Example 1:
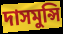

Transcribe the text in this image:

দাসমুন্সি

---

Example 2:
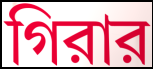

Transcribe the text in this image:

গিরার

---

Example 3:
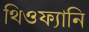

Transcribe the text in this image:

থিওফ্যানি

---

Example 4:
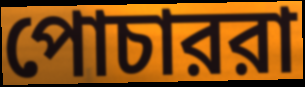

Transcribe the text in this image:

পোচাররা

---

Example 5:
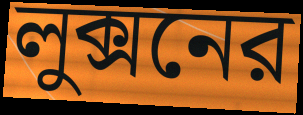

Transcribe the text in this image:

লুক্সনের